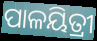
ପାଳୟିତ୍ରୀ